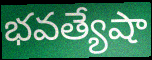
భవత్యేషా